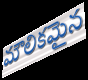
మౌలికమైన